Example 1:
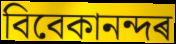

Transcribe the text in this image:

বিবেকানন্দৰ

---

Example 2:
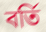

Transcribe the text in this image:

বৰ্তি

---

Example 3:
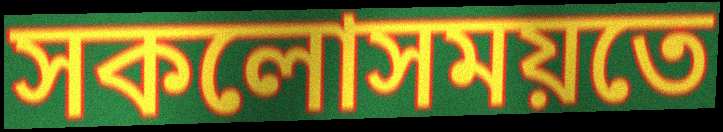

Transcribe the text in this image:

সকলোসময়তে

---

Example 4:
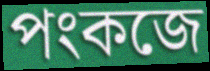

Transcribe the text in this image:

পংকজে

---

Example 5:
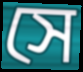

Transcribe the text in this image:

সে